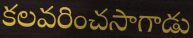
కలవరించసాగాడు